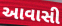
આવાસી